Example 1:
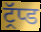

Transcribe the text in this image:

ट्रॅप्ड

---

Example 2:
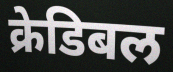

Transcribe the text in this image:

क्रेडिबल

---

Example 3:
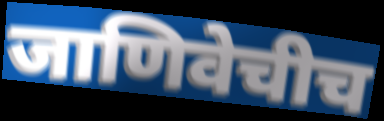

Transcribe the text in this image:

जाणिवेचीच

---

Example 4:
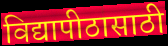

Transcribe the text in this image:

विद्यापीठासाठी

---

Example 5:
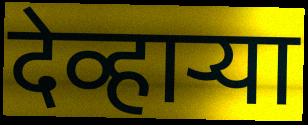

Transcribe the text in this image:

देव्हाऱ्या